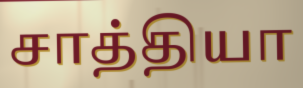
சாத்தியா